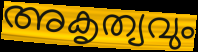
അകൃത്യവും